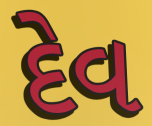
દેવ